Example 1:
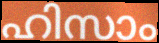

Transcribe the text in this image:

ഹിസാം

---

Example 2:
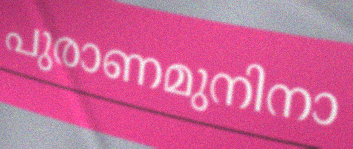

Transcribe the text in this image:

പുരാണമുനിനാ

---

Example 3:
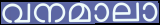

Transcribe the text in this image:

വനമാലാ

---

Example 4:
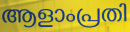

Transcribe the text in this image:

ആളാംപ്രതി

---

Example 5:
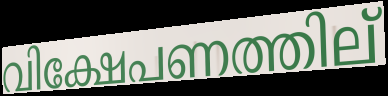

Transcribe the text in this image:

വിക്ഷേപണത്തില്